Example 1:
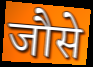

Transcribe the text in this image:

जौसे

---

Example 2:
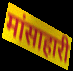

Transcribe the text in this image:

मांसाहारी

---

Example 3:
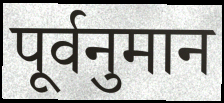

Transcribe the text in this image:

पूर्वनुमान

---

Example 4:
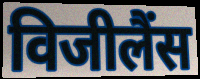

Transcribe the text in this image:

विजीलैंस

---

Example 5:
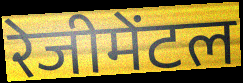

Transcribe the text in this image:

रेजीमेंटल